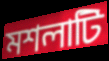
মশলাটি